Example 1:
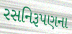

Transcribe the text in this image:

રસનિરૂપણના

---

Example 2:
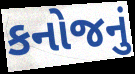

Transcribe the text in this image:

કનોજનું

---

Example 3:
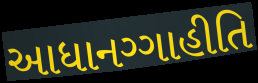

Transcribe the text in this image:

આધાનગ્ગાહીતિ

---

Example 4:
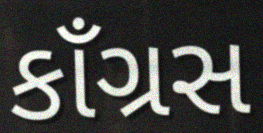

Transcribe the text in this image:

કાઁગ્રસ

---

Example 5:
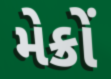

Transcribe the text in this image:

મેક્રોં